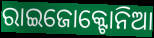
ରାଇଜୋକ୍ଟୋନିଆ